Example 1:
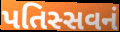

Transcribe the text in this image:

પતિસ્સવનં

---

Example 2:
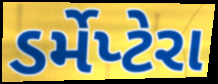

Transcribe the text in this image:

ડર્મેપ્ટેરા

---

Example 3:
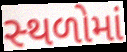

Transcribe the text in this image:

સ્‍થળોમાં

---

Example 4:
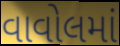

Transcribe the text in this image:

વાવોલમાં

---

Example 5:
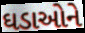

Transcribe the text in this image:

ઘડાઓને